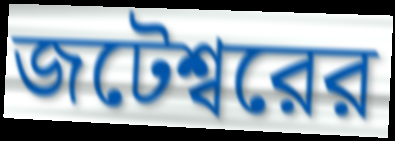
জটেশ্বরের